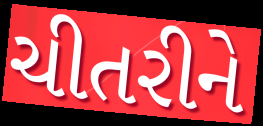
ચીતરીને